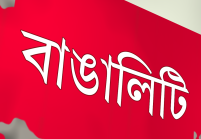
বাঙালিটি